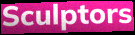
Sculptors